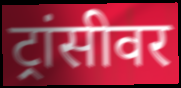
ट्रांसीवर